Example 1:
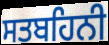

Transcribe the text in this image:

ਸਤਬਹਿਨੀ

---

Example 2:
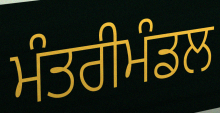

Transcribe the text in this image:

ਮੰਤਰੀਮੰਡਲ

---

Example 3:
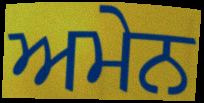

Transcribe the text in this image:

ਅਮੇਨ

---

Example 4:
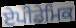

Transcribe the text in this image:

ਏਪੀਡੇਮਿਕ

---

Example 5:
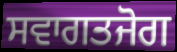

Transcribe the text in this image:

ਸਵਾਗਤਜੋਗ